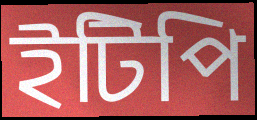
ইটিপি